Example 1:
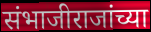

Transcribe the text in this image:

संभाजीराजांच्या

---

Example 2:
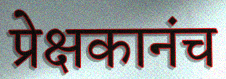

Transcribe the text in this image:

प्रेक्षकानंच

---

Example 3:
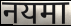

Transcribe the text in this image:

नयमा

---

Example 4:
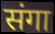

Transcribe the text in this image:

संगा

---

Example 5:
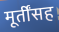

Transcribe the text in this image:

मूर्तींसह